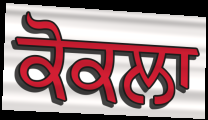
ਕੋਕਲਾ